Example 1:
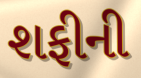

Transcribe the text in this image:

શફીની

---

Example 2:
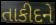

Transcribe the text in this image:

તાકીદને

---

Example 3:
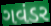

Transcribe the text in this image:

ગવંડર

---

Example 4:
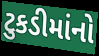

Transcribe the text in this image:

ટુકડીમાંનો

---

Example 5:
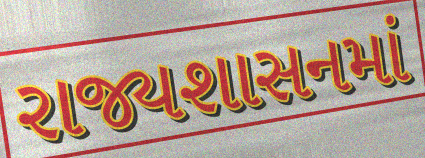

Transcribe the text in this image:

રાજ્યશાસનમાં